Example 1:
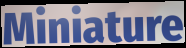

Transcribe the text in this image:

Miniature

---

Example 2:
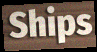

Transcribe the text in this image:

Ships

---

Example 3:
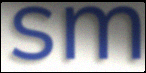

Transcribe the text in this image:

sm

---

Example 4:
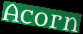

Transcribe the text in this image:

Acorn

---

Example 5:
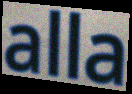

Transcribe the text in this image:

alla